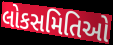
લોકસમિતિઓ